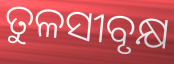
ତୁଳସୀବୃକ୍ଷ